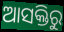
ଆସକ୍ତିରୁ